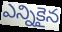
ఎన్నికైన